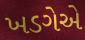
ખડગેએ